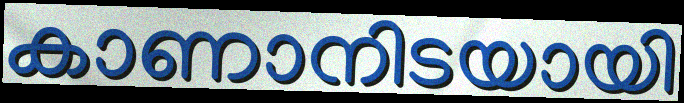
കാണാനിടയായി